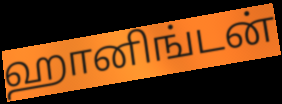
ஹானிங்டன்